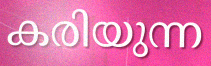
കരിയുന്ന